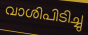
വാശിപിടിച്ചു